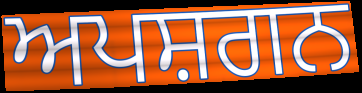
ਅਪਸ਼ਗਨ